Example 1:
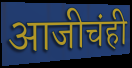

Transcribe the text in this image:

आजीचंही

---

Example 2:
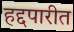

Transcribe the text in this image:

हद्दपारीत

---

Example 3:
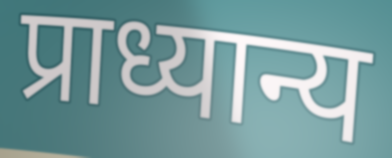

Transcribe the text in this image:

प्राध्यान्य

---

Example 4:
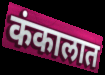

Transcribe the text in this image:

कंकालात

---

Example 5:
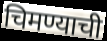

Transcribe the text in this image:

चिमण्याची